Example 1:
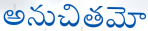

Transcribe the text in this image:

అనుచితమో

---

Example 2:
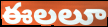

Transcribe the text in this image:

ఈలలూ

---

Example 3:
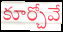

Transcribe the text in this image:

కూర్చోవే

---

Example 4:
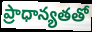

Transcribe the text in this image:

ప్రాధాన్యతతో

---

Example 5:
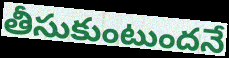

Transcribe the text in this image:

తీసుకుంటుందనే